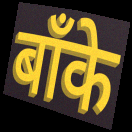
बाँके